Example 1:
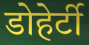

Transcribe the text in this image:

डोहेर्टी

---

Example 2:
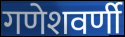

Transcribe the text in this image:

गणेशवर्णी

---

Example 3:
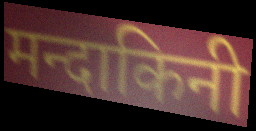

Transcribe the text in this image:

मन्दाकिनी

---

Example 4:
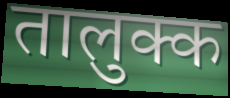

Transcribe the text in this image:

तालुक्क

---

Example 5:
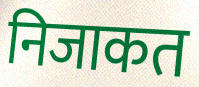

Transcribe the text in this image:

निजाकत